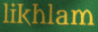
likhlam